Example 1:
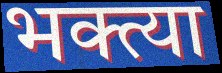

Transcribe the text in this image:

भक्त्या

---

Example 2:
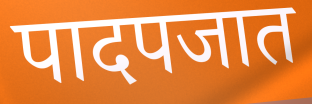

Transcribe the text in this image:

पादपजात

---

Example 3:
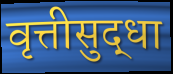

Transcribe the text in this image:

वृत्तीसुद्धा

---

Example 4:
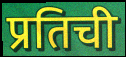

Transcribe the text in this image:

प्रतिची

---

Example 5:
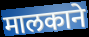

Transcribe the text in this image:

मालकाने